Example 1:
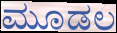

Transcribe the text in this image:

ಮೂಡಲ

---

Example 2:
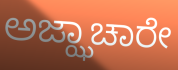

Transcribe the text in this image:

ಅಜ್ಝಾಚಾರೇ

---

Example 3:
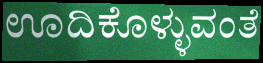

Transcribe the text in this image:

ಊದಿಕೊಳ್ಳುವಂತೆ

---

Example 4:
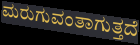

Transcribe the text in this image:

ಮರುಗುವಂತಾಗುತ್ತದೆ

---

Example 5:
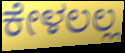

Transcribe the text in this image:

ಕೇಳಲಲ್ಲ